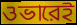
ওভারেই